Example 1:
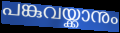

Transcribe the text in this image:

പങ്കുവയ്ക്കാനും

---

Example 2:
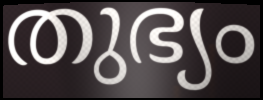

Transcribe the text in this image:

തുഭ്യം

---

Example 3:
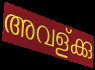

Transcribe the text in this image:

അവള്ക്കു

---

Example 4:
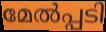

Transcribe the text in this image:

മേൽപ്പടി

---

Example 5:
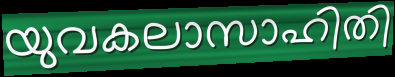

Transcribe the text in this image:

യുവകലാസാഹിതി